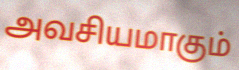
அவசியமாகும்